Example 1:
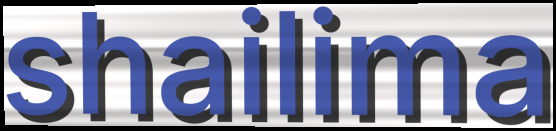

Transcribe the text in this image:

shailima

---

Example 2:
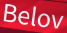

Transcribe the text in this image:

Belov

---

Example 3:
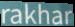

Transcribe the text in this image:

rakhar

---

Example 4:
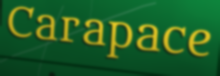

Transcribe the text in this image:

Carapace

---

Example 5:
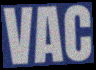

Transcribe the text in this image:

VAC